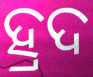
ହ୍ରଦ